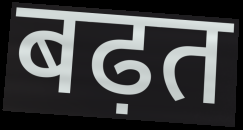
बढ़त